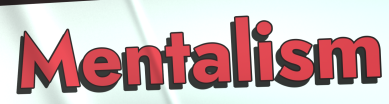
Mentalism